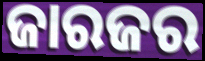
ଜାରଜର